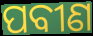
ପବୀଣ